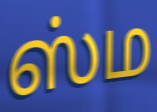
ஸ்ம